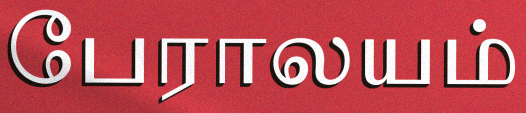
பேராலயம்